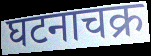
घटनाचक्र